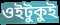
ওইটুকুই